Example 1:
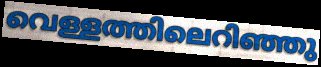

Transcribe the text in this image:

വെള്ളത്തിലെറിഞ്ഞു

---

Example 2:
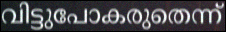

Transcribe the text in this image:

വിട്ടുപോകരുതെന്ന്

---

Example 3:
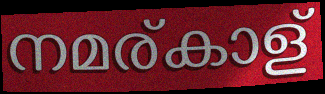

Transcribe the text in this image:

നമര്കാള്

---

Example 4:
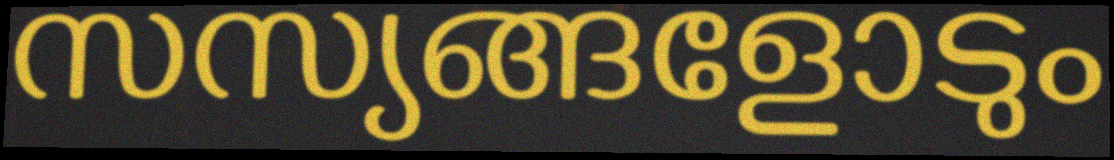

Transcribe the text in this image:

സസ്യങ്ങളോടും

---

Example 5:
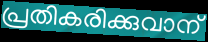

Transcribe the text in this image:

പ്രതികരിക്കുവാന്